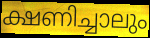
ക്ഷണിച്ചാലും